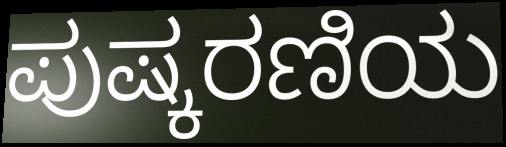
ಪುಷ್ಕರಣಿಯ